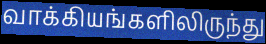
வாக்கியங்களிலிருந்து